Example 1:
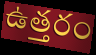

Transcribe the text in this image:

ఉత్తరం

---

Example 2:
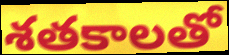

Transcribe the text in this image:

శతకాలతో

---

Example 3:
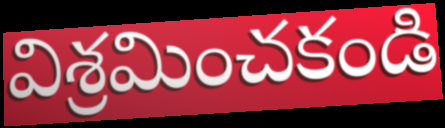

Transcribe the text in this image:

విశ్రమించకండి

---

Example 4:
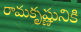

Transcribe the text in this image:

రామకృష్ణునికి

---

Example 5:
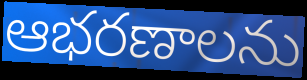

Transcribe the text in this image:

ఆభరణాలను